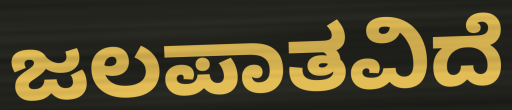
ಜಲಪಾತವಿದೆ